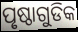
ପୃଷ୍ଠାଗୁଡିକ